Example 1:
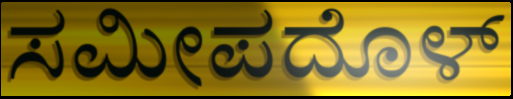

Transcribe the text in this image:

ಸಮೀಪದೊಳ್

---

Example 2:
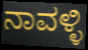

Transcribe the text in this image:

ನಾವಳ್ಳಿ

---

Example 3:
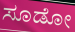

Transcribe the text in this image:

ಸೂಡೋ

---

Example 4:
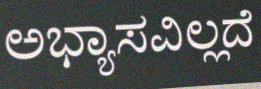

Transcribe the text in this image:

ಅಭ್ಯಾಸವಿಲ್ಲದೆ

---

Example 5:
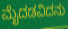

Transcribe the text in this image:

ಮೈದಡವಿದನು